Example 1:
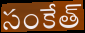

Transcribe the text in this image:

సంకేత్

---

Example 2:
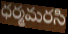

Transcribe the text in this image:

ధర్మమరసి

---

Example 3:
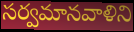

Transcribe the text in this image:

సర్వమానవాళిని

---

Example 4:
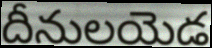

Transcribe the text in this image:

దీనులయెడ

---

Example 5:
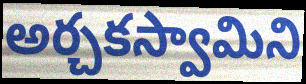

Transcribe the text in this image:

అర్చకస్వామిని